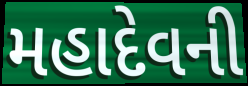
મહાદેવની